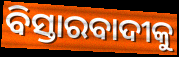
ବିସ୍ତାରବାଦୀକୁ